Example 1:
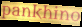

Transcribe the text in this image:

pankhino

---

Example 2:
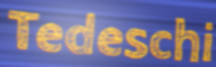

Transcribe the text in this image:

Tedeschi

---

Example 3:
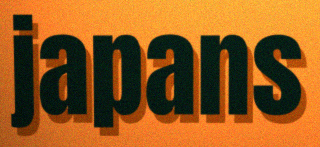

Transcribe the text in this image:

japans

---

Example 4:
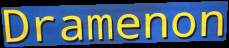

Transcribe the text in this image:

Dramenon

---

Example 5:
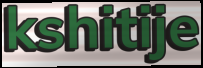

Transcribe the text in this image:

kshitije